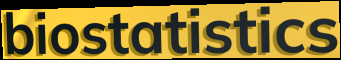
biostatistics